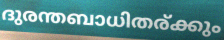
ദുരന്തബാധിതര്ക്കും